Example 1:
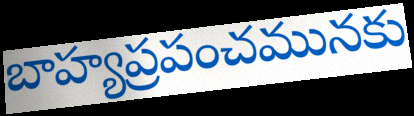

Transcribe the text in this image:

బాహ్యప్రపంచమునకు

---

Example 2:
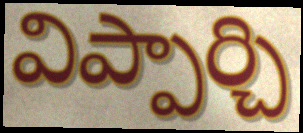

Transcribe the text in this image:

విప్పార్చి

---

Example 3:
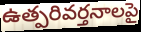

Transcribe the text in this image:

ఉత్పరివర్తనాలపై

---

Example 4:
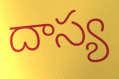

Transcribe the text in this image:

దాస్య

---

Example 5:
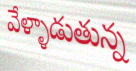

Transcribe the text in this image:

వేళ్ళాడుతున్న